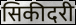
सिकीदरी